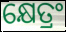
କ୍ଷେତ୍ରଂ